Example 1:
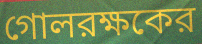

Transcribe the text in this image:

গোলরক্ষকের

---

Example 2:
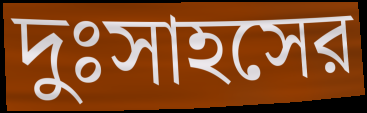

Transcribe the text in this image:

দুঃসাহসের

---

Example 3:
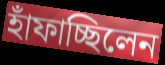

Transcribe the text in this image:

হাঁফাচ্ছিলেন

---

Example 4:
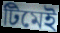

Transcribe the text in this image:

টিমেই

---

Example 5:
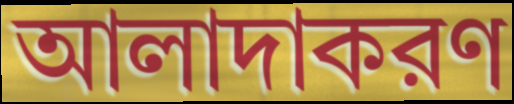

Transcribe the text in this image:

আলাদাকরণ